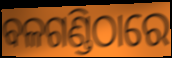
ବଳଗଣ୍ଡିଠାରେ